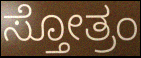
ಸ್ತೋತ್ರಂ